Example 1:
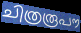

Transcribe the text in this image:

ചിത്രരൂപൗ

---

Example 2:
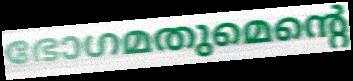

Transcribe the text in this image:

ഭോഗമതുമെന്റെ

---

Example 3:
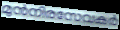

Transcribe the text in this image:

മുൻനിരസേവകർ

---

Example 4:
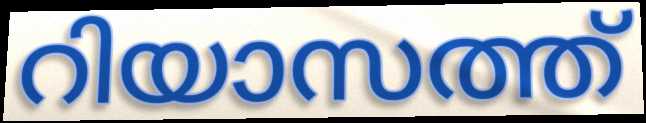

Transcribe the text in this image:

റിയാസത്ത്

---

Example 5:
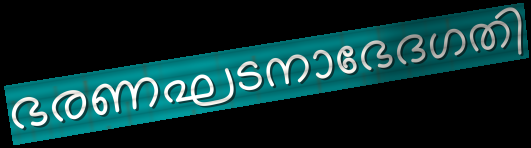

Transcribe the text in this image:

ഭരണഘടനാഭേദഗതി